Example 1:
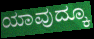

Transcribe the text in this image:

ಯಾವುದ್ಕೂ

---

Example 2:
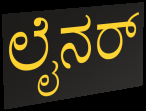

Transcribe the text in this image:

ಲೈನರ್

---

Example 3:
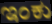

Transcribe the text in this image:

ಇಂಕು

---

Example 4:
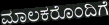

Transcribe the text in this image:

ಮಾಲಕರೊಂದಿಗೆ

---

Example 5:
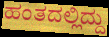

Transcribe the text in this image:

ಹಂತದಲ್ಲಿದ್ದು